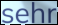
sehr